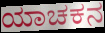
ಯಾಚಕನ